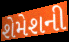
શેમેશની